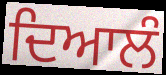
ਦਿਆਲੰ